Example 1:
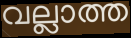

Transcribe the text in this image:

വല്ലാത്ത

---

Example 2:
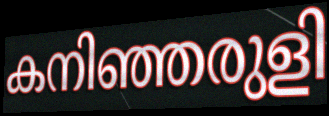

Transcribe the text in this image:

കനിഞ്ഞരുളി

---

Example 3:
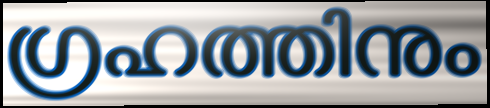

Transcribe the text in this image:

ഗ്രഹത്തിനും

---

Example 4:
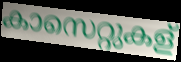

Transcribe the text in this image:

കാസെറ്റുകള്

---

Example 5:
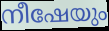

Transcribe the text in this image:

നീഷേയും